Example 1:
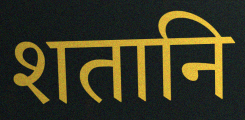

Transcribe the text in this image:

शतानि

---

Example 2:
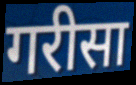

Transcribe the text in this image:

गरीसा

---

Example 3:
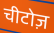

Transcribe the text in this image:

चीटोज़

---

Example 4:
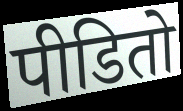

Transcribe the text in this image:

पीडितो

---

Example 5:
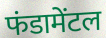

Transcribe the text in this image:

फंडामेंटल